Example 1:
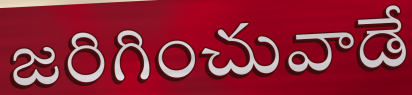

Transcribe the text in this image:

జరిగించువాడే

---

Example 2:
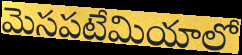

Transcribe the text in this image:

మెసపటేమియాలో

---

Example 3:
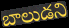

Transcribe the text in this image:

బాలుడని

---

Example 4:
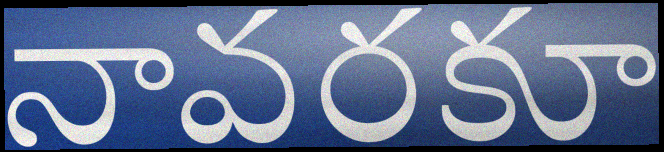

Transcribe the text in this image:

నావరకూ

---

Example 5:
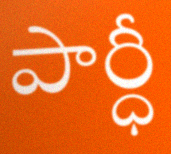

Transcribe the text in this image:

పార్ధీ